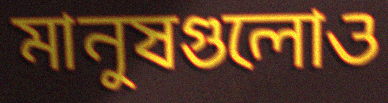
মানুষগুলোও